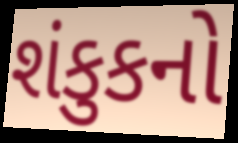
શંકુકનો